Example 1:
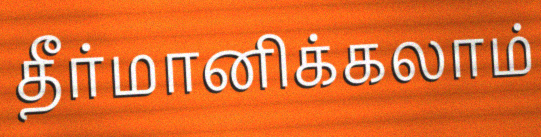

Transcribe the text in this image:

தீர்மானிக்கலாம்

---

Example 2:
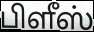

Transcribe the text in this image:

பிளீஸ்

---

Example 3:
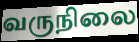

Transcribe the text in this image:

வருநிலை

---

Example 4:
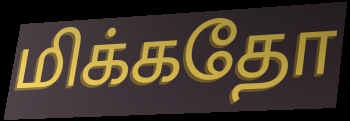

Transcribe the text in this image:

மிக்கதோ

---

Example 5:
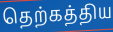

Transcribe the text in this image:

தெற்கத்திய